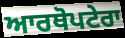
ਆਰਥੋਪਟੇਰਾ